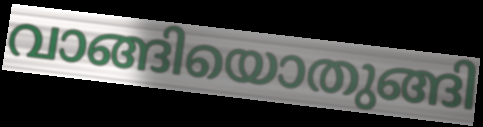
വാങ്ങിയൊതുങ്ങി